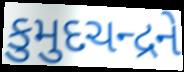
કુમુદચન્દ્રને